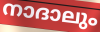
നാദാലും